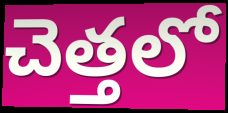
చెత్తలో